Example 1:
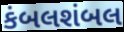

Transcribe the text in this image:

કંબલશંબલ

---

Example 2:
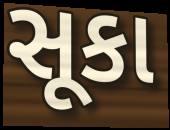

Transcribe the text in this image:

સૂકા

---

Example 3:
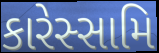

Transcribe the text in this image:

કારેસ્સામિ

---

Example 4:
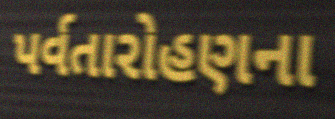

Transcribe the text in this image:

પર્વતારોહણના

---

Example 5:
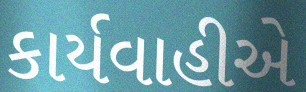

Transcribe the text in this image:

કાર્યવાહીએ